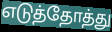
எடுத்தோத்து